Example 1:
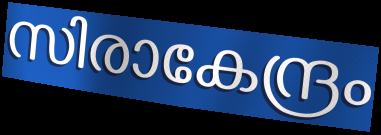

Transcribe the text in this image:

സിരാകേന്ദ്രം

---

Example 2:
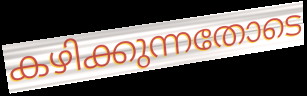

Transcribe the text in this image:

കഴിക്കുന്നതോടെ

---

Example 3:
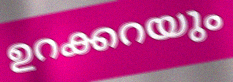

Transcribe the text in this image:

ഉറക്കറയും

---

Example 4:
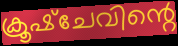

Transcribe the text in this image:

ക്രൂഷ്ചേവിന്റെ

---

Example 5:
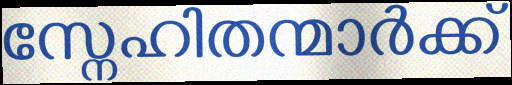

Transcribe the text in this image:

സ്നേഹിതന്മാർക്ക്